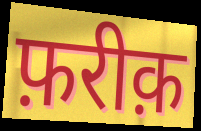
फ़रीक़